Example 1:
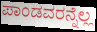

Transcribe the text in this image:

ಪಾಂಡವರನ್ನೆಲ್ಲ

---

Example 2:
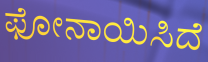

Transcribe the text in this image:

ಫೋನಾಯಿಸಿದೆ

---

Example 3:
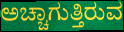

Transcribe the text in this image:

ಅಚ್ಚಾಗುತ್ತಿರುವ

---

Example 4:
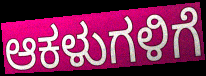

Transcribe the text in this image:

ಆಕಳುಗಳಿಗೆ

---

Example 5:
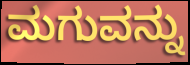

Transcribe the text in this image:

ಮಗುವನ್ನು